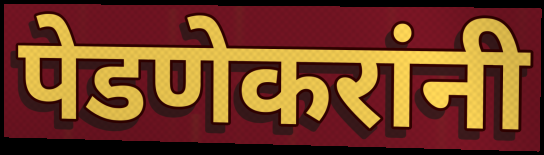
पेडणेकरांनी